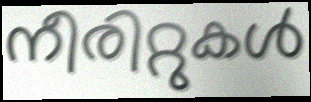
നീരിറ്റുകൾ